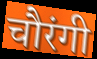
चौरंगी